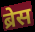
ब्रेस